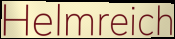
Helmreich